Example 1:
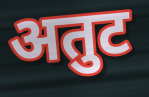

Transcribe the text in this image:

अतुट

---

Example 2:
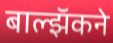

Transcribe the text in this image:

बाल्झॅकने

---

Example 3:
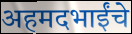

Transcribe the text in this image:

अहमदभाईंचे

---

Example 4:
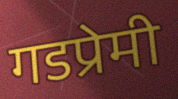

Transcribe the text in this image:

गडप्रेमी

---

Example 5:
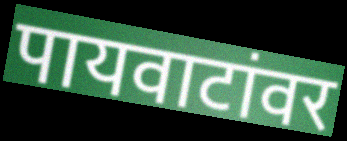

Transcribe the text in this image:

पायवाटांवर